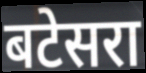
बटेसरा